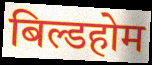
बिल्डहोम